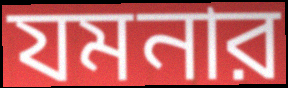
যমনার